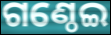
ଗଣ୍ଠେଇ